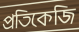
প্রতিকেজি